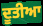
ਦੂਤੀਆ